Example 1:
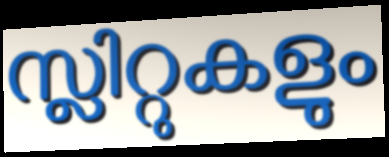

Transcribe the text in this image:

സ്ലിറ്റുകളും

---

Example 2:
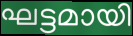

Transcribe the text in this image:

ഘട്ടമായി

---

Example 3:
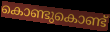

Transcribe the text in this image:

കൊണ്ടുകൊണ്ട്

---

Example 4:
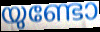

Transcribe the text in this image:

യുണ്ടോ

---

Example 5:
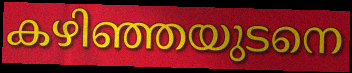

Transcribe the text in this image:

കഴിഞ്ഞയുടനെ